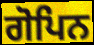
ਗੋਪਿਨ